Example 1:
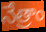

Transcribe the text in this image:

నేత్రాం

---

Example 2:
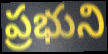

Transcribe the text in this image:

ప్రభుని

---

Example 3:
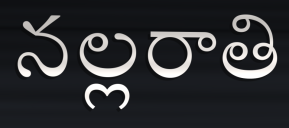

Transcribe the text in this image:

నల్లరాతి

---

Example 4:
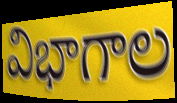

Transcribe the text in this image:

విభాగాల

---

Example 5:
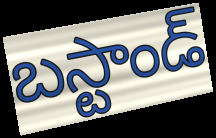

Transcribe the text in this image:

బస్టాండ్